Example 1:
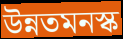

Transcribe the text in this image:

উন্নতমনস্ক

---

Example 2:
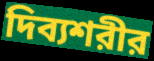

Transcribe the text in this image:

দিব্যশরীর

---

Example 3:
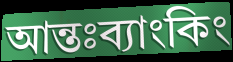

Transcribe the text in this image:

আন্তঃব্যাংকিং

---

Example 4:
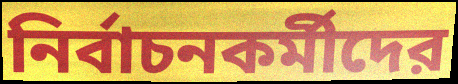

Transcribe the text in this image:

নির্বাচনকর্মীদের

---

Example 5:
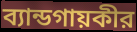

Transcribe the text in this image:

ব্যান্ডগায়কীর